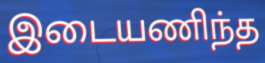
இடையணிந்த